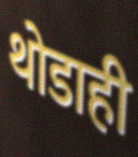
थोडाही